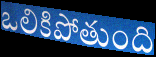
ఒలికిపోతుంది